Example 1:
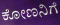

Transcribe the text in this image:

ಕೋಣನಿಗೆ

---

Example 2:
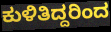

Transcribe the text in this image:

ಕುಳಿತಿದ್ದರಿಂದ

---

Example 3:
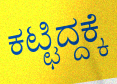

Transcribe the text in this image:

ಕಟ್ಟಿದ್ದಕ್ಕೆ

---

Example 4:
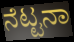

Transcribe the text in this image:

ನೆಟ್ಟನಾ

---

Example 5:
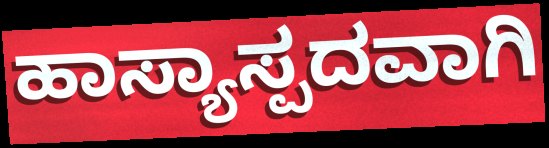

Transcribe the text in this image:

ಹಾಸ್ಯಾಸ್ಪದವಾಗಿ